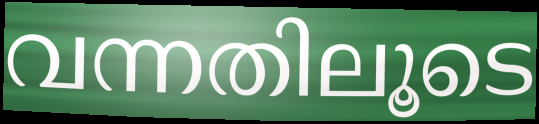
വന്നതിലൂടെ